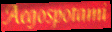
Aegospotami